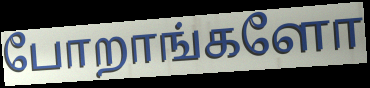
போறாங்களோ